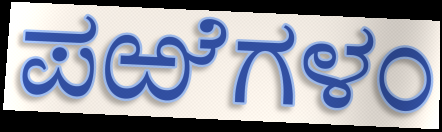
ಪಱೆಗಳಂ